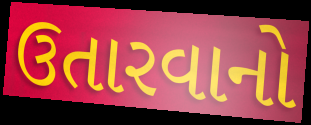
ઉતારવાનો